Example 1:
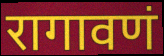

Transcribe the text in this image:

रागावणं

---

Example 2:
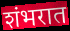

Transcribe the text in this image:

शंभरात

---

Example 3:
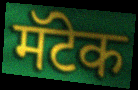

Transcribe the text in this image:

मॅटेक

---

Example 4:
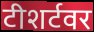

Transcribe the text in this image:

टीशर्टवर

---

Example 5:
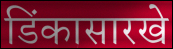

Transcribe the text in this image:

डिंकासारखे